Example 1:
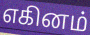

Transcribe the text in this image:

எகினம்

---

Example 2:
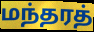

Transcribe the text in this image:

மந்தரத்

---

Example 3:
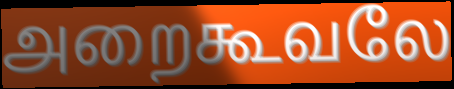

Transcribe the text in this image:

அறைகூவலே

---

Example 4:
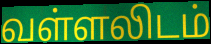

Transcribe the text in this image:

வள்ளலிடம்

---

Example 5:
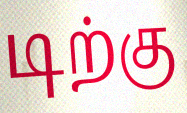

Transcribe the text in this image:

டிற்கு